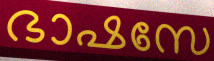
ഭാഷസേ